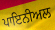
ਪਾਇਨੀਅਲ